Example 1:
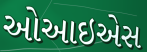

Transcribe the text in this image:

ઓઆઇએસ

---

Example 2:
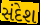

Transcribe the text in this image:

સંદેશ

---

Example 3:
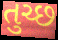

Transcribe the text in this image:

તુચ્છ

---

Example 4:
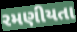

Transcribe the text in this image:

રમણીયતા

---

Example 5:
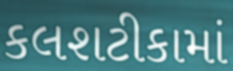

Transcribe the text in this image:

કલશટીકામાં